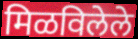
मिळविलेले